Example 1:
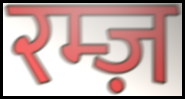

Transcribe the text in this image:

रम्ज़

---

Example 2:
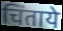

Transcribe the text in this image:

चिंताये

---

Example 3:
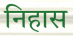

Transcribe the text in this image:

निहास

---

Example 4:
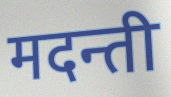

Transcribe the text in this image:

मदन्ती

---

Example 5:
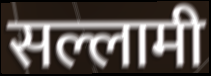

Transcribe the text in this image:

सल्लामी